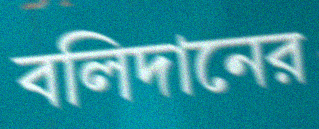
বলিদানের